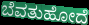
ಬೆವತುಹೋದೆ